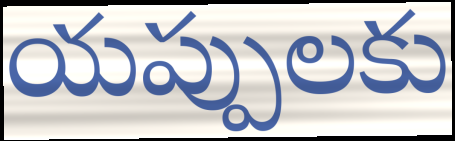
యప్పులకు